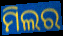
ମିଲର